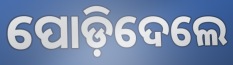
ପୋଡ଼ିଦେଲେ